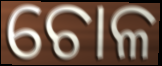
ଚୋଳ